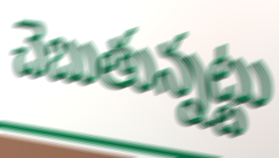
చెబుతున్నట్టు